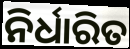
ନିର୍ଧାରିତ